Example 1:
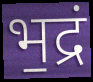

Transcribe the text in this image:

भ॒द्रं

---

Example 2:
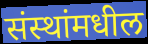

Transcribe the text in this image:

संस्थांमधील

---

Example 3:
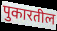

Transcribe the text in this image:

पुकारतील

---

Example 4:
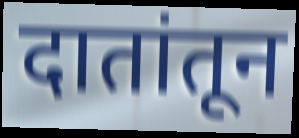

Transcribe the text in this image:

दातांतून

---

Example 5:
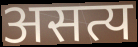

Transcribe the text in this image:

असत्य